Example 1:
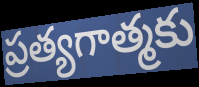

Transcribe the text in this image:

ప్రత్యగాత్మకు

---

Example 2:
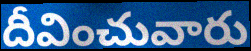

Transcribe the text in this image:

దీవించువారు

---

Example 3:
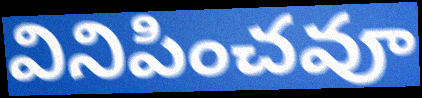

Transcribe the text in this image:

వినిపించవూ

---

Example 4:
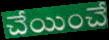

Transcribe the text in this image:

చేయించే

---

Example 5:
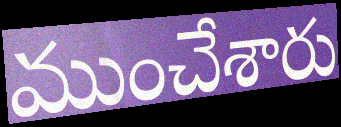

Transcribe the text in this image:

ముంచేశారు